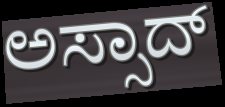
ಅಸ್ಸಾದ್